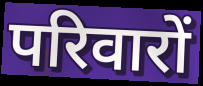
परिवारों